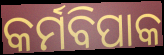
କର୍ମବିପାକ